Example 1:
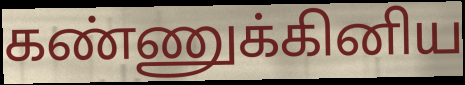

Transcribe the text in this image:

கண்ணுக்கினிய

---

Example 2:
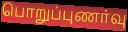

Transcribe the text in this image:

பொறுப்புணர்வு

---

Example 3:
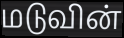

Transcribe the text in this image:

மடுவின்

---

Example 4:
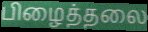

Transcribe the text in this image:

பிழைத்தலை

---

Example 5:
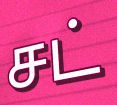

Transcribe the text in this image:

சட்